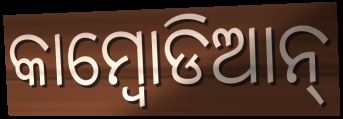
କାମ୍ବୋଡିଆନ୍